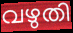
വഴുതി